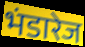
भंडारेज